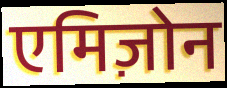
एमिज़ोन